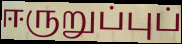
ஈருறுப்புப்